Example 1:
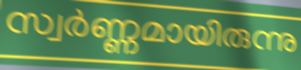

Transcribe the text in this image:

സ്വർണ്ണമായിരുന്നു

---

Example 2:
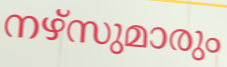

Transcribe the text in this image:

നഴ്സുമാരും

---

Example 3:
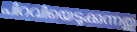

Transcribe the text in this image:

പിറവിയെടുക്കുന്നതു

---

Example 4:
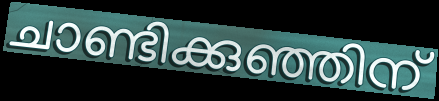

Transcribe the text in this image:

ചാണ്ടിക്കുഞ്ഞിന്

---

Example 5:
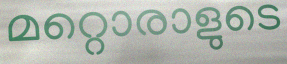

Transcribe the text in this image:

മറ്റൊരാളുടെ